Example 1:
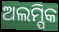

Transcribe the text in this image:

ଅଲମ୍ପିକ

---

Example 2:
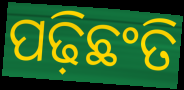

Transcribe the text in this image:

ପଢ଼ିଛଂତି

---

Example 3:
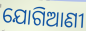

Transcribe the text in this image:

ଯୋଗିଆଣୀ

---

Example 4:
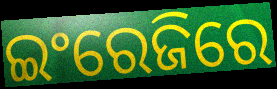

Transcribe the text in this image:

ଇଂରେଜିରେ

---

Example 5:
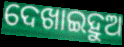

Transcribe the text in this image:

ଦେଖାଇହୁଅ